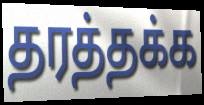
தரத்தக்க